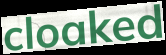
cloaked